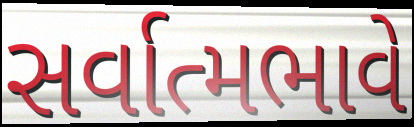
સર્વાત્મભાવે